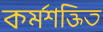
কৰ্মশক্তিত